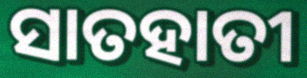
ସାତହାତୀ